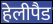
हेलीपैड